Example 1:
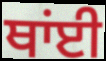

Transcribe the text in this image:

ਥਾਂਈ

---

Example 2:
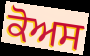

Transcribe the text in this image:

ਕੋਅਸ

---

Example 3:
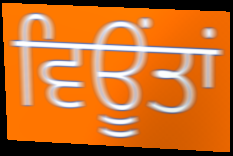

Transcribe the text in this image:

ਵਿਊਂਤਾਂ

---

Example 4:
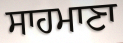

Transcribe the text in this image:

ਸਾਹਮਾਣਾ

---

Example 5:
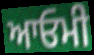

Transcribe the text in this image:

ਆਓਮੀ